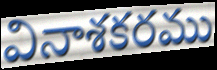
వినాశకరము